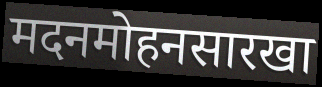
मदनमोहनसारखा